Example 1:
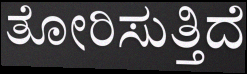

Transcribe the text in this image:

ತೋರಿಸುತ್ತಿದೆ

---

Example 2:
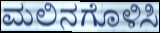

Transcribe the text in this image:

ಮಲಿನಗೊಳಿಸಿ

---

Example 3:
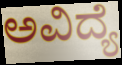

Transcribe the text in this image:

ಅವಿದ್ಯೆ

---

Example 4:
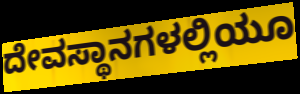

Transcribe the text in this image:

ದೇವಸ್ಥಾನಗಳಲ್ಲಿಯೂ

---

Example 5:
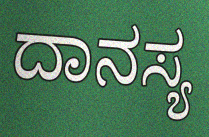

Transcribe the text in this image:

ದಾನಸ್ಯ